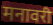
मनावरी